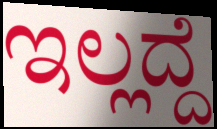
ಇಲ್ಲದ್ದೆ